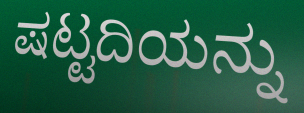
ಷಟ್ಟದಿಯನ್ನು